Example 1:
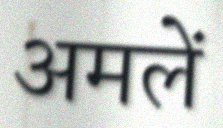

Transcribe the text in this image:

अमलें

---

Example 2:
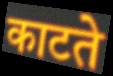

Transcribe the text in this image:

काटते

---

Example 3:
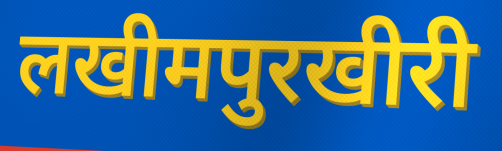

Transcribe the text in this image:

लखीमपुरखीरी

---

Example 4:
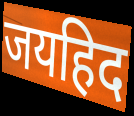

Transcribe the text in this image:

जयहिद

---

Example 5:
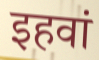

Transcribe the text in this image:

इहवां